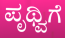
ಪೃಥ್ವಿಗೆ